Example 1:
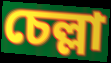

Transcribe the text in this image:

চেল্লা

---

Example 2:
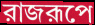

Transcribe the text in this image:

রাজরূপে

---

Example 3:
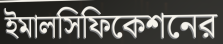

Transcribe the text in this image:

ইমালসিফিকেশনের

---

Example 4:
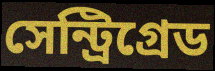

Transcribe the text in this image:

সেন্ট্রিগ্রেড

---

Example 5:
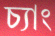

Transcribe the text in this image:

চ্যাং